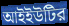
আইইউটির